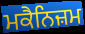
ਮਕੈਨਿਜ਼ਮ